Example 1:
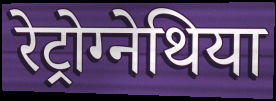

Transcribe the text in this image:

रेट्रोग्नेथिया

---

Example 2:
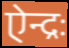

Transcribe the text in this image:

ऐन्द्रः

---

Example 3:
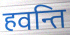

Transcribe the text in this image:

हवन्ति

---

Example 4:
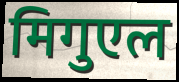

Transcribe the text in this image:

मिगुएल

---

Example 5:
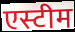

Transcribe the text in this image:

एस्टीम